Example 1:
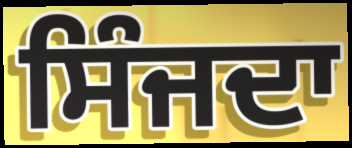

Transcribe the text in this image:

ਸਿੰਜਦਾ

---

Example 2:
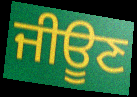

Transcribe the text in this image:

ਜੀਊਣ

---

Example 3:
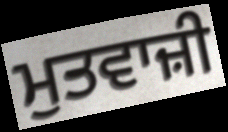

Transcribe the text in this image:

ਮੁਤਵਾਜ਼ੀ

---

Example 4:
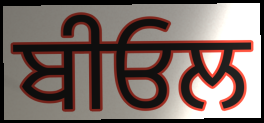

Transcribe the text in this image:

ਬੀਓਲ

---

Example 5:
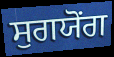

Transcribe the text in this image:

ਸੁਗਯੋਂਗ